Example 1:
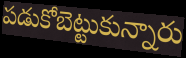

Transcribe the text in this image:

పడుకోబెట్టుకున్నారు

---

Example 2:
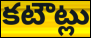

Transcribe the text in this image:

కటౌట్లు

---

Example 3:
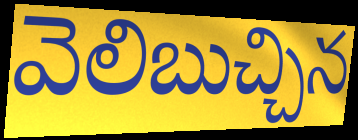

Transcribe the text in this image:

వెలిబుచ్చిన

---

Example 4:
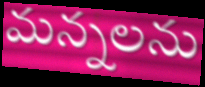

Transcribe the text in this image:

మన్నలను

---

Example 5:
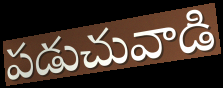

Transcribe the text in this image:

పడుచువాడి